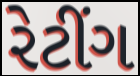
રેટીંગ